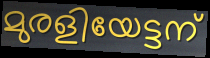
മുരളിയേട്ടന്